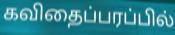
கவிதைப்பரப்பில்